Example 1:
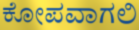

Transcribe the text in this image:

ಕೋಪವಾಗಲಿ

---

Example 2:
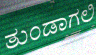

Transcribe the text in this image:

ತುಂಡಾಗಲಿ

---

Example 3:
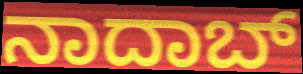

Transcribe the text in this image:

ನಾದಾಬ್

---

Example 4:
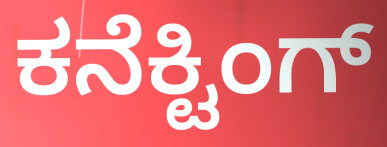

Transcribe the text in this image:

ಕನೆಕ್ಟಿಂಗ್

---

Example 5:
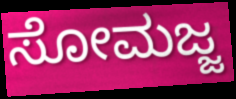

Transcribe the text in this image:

ಸೋಮಜ್ಜ